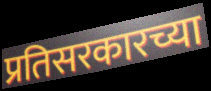
प्रतिसरकारच्या